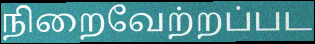
நிறைவேற்றப்பட